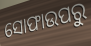
ସୋଫାଉପରୁ